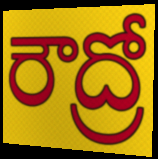
రౌద్రో